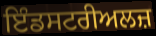
ਇੰਡਸਟਰੀਅਲਜ਼